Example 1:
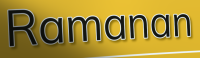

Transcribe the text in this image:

Ramanan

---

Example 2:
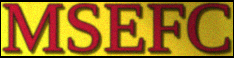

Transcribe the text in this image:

MSEFC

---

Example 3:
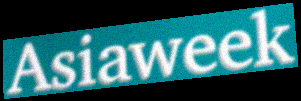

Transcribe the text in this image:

Asiaweek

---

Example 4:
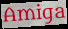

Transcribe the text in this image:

Amiga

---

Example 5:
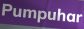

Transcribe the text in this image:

Pumpuhar